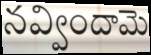
నవ్విందామె